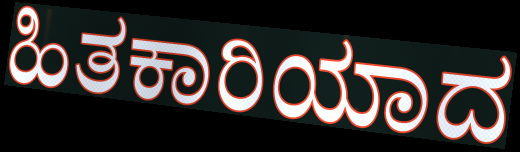
ಹಿತಕಾರಿಯಾದ